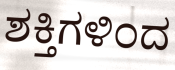
ಶಕ್ತಿಗಳಿಂದ